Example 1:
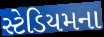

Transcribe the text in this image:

સ્ટેડિયમના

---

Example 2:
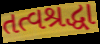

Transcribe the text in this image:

તત્વશ્રદ્ધા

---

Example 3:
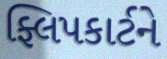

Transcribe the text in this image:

ફ્લિપકાર્ટને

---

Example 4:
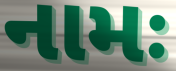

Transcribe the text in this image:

નામઃ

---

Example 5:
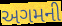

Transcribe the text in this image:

અગમની